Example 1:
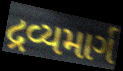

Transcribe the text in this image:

દ્રવ્યમાર્ગ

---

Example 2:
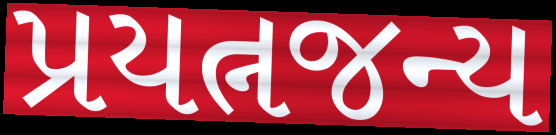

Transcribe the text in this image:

પ્રયત્નજન્ય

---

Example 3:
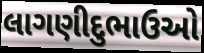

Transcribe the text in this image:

લાગણીદુભાઉઓ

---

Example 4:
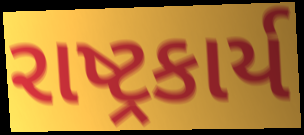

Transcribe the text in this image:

રાષ્ટ્રકાર્ય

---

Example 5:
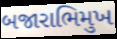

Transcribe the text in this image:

બજારાભિમુખ